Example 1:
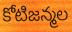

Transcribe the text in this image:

కోటిజన్మల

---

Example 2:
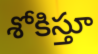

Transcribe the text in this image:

శోకిస్తూ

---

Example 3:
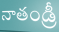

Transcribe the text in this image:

నాతండ్రీ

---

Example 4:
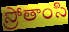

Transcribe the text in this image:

స్రోతాంసి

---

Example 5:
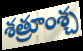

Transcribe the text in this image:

శత్రూంశ్చ